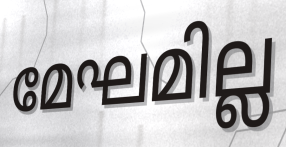
മേഘമില്ല